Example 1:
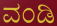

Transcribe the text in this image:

ವಂಡಿ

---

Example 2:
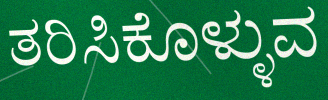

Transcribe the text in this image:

ತರಿಸಿಕೊಳ್ಳುವ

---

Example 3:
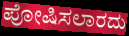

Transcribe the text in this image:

ಪೋಷಿಸಲಾರದು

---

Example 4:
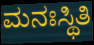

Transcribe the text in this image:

ಮನಃಸ್ಥಿತಿ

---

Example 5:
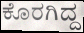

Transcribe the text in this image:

ಕೊರಗಿದ್ದ